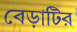
বেড়াটির